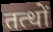
तत्थों